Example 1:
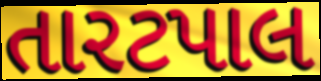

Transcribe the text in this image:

તારટપાલ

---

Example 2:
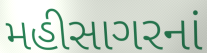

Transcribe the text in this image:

મહીસાગરનાં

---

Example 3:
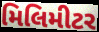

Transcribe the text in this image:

મિલિમીટર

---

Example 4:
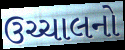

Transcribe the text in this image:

ઉચ્ચાલનો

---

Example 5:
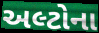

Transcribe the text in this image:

અલ્ટોના